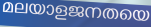
മലയാളജനതയെ